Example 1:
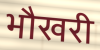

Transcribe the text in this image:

भौखरी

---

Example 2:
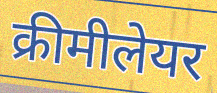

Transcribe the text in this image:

क्रीमीलेयर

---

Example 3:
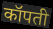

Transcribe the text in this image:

कॉपती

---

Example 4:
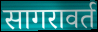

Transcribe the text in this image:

सागरावर्त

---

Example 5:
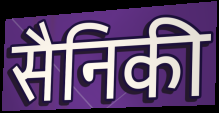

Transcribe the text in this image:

सैनिकी